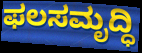
ಫಲಸಮೃದ್ಧಿ